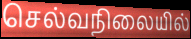
செல்வநிலையில்